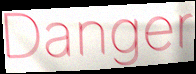
Danger